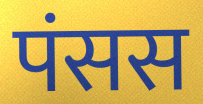
पंसस